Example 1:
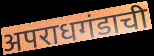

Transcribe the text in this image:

अपराधगंडाची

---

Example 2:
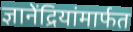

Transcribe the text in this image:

ज्ञानेंद्रियांमार्फत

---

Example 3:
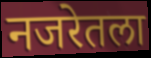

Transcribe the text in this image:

नजरेतला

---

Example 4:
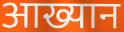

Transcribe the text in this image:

आख्यान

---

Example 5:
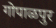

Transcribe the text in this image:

गोपाळपुर